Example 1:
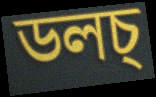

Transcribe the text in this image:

ডলচ্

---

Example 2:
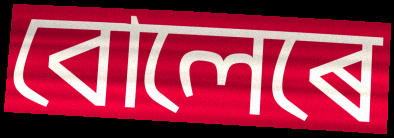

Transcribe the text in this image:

বোলেৰে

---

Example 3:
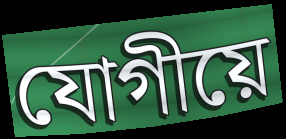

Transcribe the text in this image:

যোগীয়ে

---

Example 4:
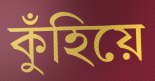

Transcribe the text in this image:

কুঁহিয়ে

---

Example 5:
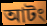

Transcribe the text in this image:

আটং